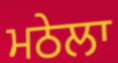
ਮਠੇਲਾ